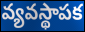
వ్యవస్థాపక